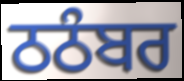
ਠਠੰਬਰ